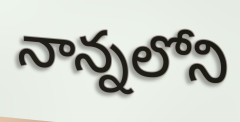
నాన్నలోని